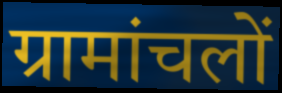
ग्रामांचलों